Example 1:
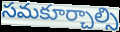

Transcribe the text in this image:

సమకూర్చాల్సి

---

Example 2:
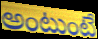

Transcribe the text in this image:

అంటుంటే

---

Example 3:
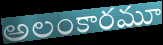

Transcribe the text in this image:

అలంకారమూ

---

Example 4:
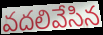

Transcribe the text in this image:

వదలివేసిన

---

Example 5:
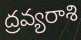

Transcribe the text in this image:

ద్రవ్యరాశి